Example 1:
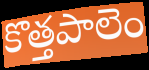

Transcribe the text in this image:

కొత్తపాలెం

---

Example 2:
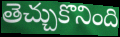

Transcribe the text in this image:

తెచ్చుకొనింది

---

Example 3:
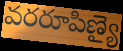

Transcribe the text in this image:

వరరూపిణ్యై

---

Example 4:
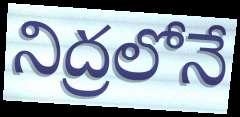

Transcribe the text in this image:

నిద్రలోనే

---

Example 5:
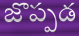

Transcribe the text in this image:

జొప్పడ